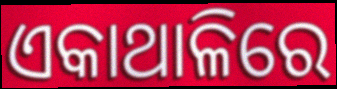
ଏକାଥାଳିରେ